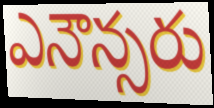
ఎనౌన్సరు